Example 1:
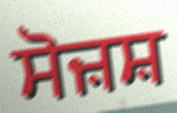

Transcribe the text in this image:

ਸੋਜ਼ਸ਼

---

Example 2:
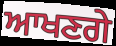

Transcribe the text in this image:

ਆਖਣਗੇ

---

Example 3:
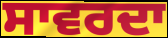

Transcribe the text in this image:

ਸਾਵਰਦਾ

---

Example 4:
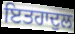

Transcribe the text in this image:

ਇਤਹਾਦੁਲ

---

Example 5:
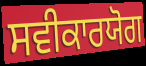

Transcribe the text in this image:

ਸਵੀਕਾਰਯੋਗ